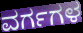
ವರ್ಗಗಳ